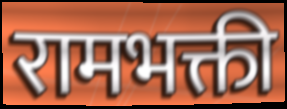
रामभक्ती